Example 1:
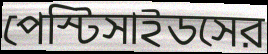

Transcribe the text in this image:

পেস্টিসাইডসের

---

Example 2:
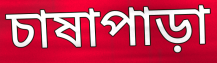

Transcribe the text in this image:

চাষাপাড়া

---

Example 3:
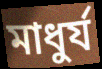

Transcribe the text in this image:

মাধুর্য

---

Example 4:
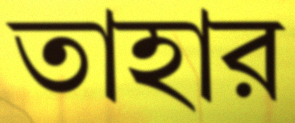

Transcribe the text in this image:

তাহার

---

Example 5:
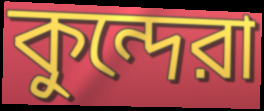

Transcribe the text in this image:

কুন্দেরা